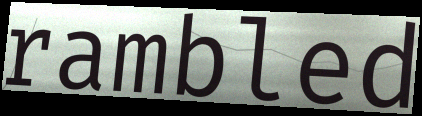
rambled